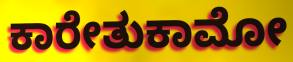
ಕಾರೇತುಕಾಮೋ